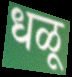
धळू